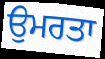
ਉਮਰਤਾ